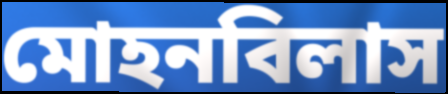
মোহনবিলাস